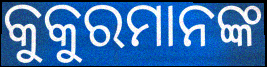
କୁକୁରମାନଙ୍କ